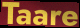
Taare